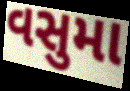
વસુમા